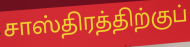
சாஸ்திரத்திற்குப்